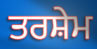
ਤਰਸ਼ੇਮ